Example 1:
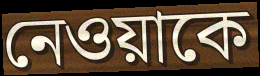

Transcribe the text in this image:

নেওয়াকে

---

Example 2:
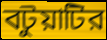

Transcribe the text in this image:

বটুয়াটির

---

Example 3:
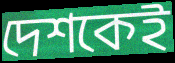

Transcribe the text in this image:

দেশকেই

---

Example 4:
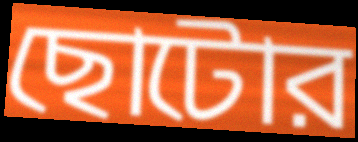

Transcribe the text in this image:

ছোটোর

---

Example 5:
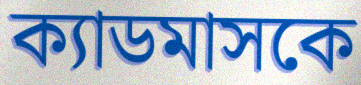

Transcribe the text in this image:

ক্যাডমাসকে